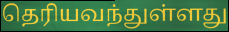
தெரியவந்துள்ளது